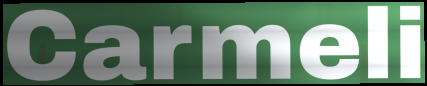
Carmeli